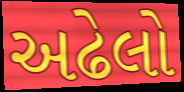
અઢેલો